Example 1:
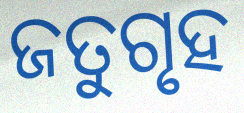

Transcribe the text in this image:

ଜତୁଗୃହ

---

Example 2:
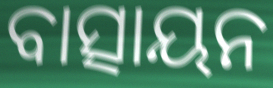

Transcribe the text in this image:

ବାତ୍ସାୟନ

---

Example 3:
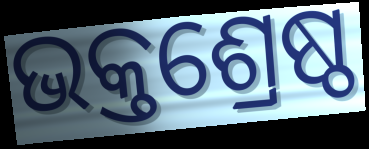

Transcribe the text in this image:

ଭକ୍ତଶ୍ରେଷ୍ଠ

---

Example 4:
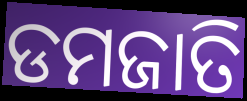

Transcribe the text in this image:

ଡମଜାତି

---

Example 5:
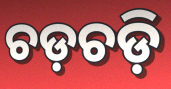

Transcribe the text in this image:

ଚଡ଼ଚଡ଼ି